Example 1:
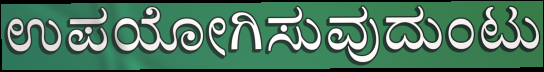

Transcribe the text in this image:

ಉಪಯೋಗಿಸುವುದುಂಟು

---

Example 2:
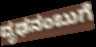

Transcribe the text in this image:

ದೃಢನಂಬುಗೆ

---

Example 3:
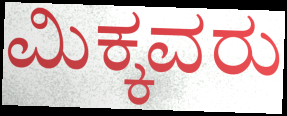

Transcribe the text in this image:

ಮಿಕ್ಕವರು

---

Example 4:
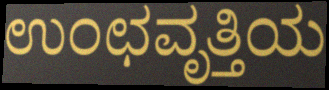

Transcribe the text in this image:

ಉಂಛವೃತ್ತಿಯ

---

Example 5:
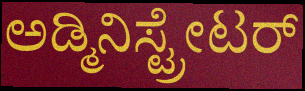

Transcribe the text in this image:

ಅಡ್ಮಿನಿಸ್ಟ್ರೇಟರ್